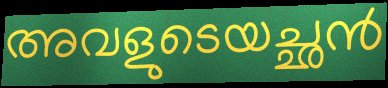
അവളുടെയച്ഛൻ